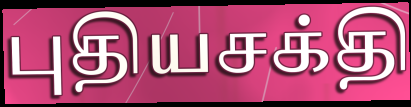
புதியசக்தி